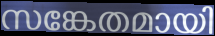
സങ്കേതമായി